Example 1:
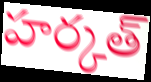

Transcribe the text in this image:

హర్కత్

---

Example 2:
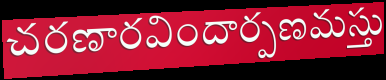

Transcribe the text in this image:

చరణారవిందార్పణమస్తు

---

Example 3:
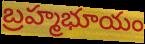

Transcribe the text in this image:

బ్రహ్మభూయం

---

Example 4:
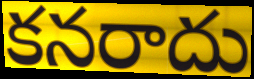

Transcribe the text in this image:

కనరాదు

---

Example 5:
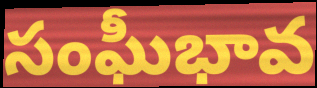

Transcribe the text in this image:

సంఘీభావ